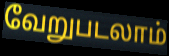
வேறுபடலாம்